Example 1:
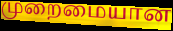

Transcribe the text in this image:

முறைமையான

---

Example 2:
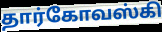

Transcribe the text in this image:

தார்கோவஸ்கி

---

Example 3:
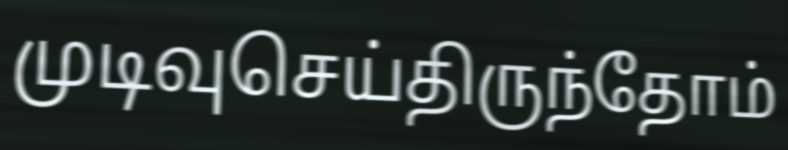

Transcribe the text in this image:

முடிவுசெய்திருந்தோம்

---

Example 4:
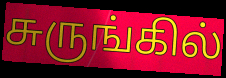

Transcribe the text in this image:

சுருங்கில்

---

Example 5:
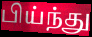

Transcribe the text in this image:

பிய்ந்து